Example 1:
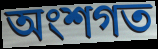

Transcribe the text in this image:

অংশগত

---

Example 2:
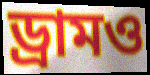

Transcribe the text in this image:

ড্রামও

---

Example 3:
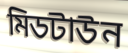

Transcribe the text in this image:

মিডটাউন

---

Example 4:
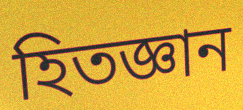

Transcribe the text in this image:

হিতজ্ঞান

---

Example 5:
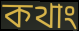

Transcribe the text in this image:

কথাং